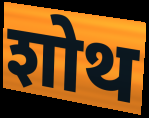
शोथ